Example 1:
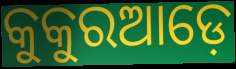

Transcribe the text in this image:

କୁକୁରଆଡ଼େ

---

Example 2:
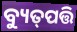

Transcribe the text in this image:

ବ୍ୟୁତ୍‌ପତ୍ତି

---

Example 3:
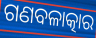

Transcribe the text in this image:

ଗଣବଳାତ୍କାର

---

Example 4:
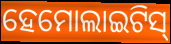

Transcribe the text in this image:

ହେମୋଲାଇଟିସ୍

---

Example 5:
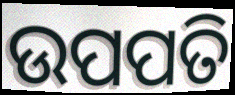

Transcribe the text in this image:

ଉପପତି